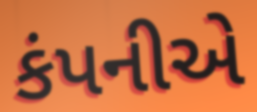
કંપનીએ